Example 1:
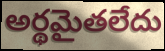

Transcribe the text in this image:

అర్థమైతలేదు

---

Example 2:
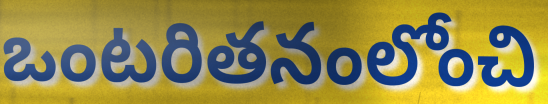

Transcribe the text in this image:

ఒంటరితనంలోంచి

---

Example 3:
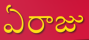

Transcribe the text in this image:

ఏరాజు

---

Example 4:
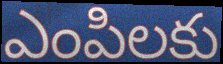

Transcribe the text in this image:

ఎంపిలకు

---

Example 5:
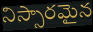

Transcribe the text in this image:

నిస్సారమైన